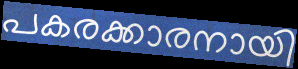
പകരക്കാരനായി